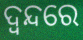
ଦ୍ୱନ୍ଦରେ